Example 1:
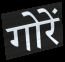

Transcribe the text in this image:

गोरें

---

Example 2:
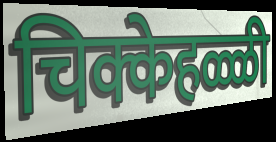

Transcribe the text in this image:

चिक्केहळ्ळी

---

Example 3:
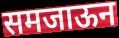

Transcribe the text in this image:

समजाऊन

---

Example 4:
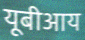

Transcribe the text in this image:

यूबीआय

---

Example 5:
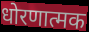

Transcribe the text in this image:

धोरणात्मक